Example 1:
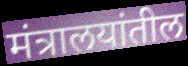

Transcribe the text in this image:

मंत्रालयांतील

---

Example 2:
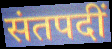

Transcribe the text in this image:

संतपदीं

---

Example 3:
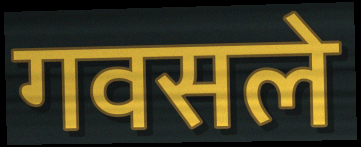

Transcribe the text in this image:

गवसले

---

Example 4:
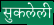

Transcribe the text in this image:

सुकलेली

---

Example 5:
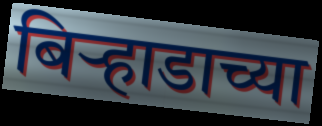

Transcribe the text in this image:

बिऱ्हाडाच्या